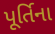
પૂર્તિના